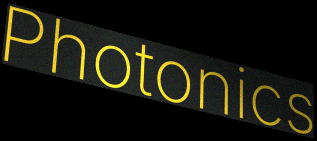
Photonics